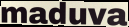
maduva